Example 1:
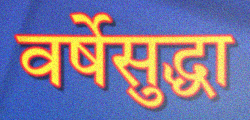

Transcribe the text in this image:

वर्षेसुद्धा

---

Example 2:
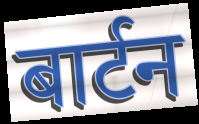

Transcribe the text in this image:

बार्टन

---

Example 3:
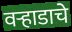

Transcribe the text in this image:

वऱ्हाडाचे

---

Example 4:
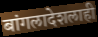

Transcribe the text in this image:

बांगलादेशलाही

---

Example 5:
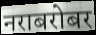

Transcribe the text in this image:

नराबरोबर